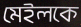
মেইলকে